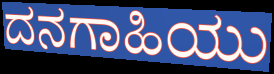
ದನಗಾಹಿಯು